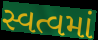
સ્વત્વમાં